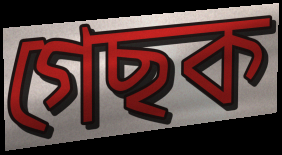
গেছক